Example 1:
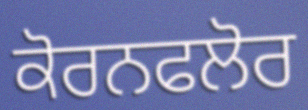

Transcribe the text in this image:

ਕੋਰਨਫਲੋਰ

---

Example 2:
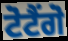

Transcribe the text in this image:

ਟੋਟੈਂਗੋ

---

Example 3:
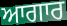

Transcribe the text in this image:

ਆਗਾਰ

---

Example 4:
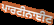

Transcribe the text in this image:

ਪਾਰਟੀਨਾਈਟ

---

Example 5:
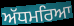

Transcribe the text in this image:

ਅੱਧਮਰਿਆ